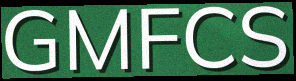
GMFCS